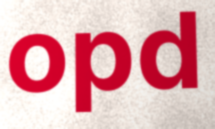
opd